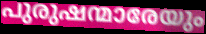
പുരുഷന്മാരേയും